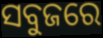
ସବୁଜରେ